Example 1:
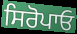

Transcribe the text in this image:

ਸਿਰੋਪਾਓ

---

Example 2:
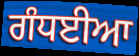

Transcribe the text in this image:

ਗੰਧਈਆ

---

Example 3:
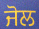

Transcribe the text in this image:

ਜੋਲ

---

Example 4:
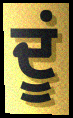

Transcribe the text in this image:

ਦੂਂ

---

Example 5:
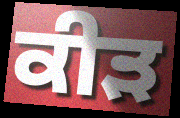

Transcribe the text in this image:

ਕੀੜ